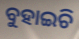
ବୁହାଇଚି